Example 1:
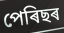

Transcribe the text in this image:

পেৰিছৰ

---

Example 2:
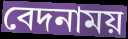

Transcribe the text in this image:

বেদনাময়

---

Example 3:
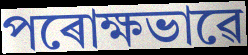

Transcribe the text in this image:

পৰোক্ষভাৱে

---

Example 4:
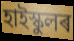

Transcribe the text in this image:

হাইস্কুলৰ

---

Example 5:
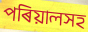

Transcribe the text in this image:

পৰিয়ালসহ